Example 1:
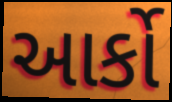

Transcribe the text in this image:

આર્કો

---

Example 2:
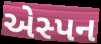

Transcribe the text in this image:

એસ્પન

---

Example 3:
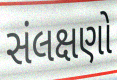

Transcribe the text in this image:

સંલક્ષણો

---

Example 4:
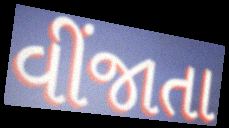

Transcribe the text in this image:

વીંજાતા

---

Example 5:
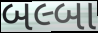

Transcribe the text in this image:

બલ્બા